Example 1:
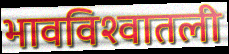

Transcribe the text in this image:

भावविश्वातली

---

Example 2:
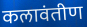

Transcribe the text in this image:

कलावंतीण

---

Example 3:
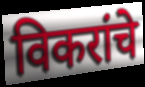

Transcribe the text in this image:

विकरांचे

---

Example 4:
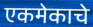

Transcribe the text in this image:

एकमेकाचे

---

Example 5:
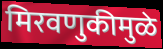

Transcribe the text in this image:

मिरवणुकीमुळे